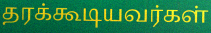
தரக்கூடியவர்கள்